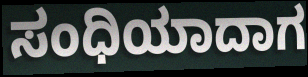
ಸಂಧಿಯಾದಾಗ